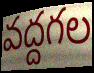
వద్దగల